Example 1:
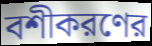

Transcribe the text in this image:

বশীকরণের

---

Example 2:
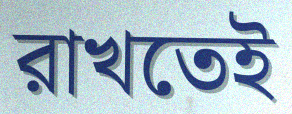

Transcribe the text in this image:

রাখতেই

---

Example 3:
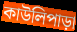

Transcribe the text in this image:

কাউলিপাড়া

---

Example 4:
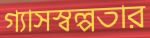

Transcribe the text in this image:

গ্যাসস্বল্পতার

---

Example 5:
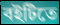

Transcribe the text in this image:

বইটিতে